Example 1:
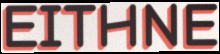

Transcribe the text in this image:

EITHNE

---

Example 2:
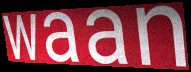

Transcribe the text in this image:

waan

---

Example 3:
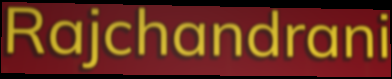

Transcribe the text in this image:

Rajchandrani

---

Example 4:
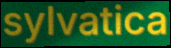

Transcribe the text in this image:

sylvatica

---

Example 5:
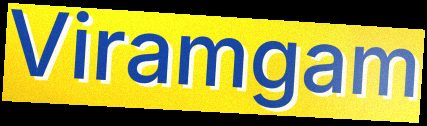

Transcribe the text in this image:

Viramgam